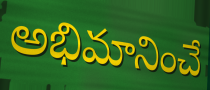
అభిమానించే